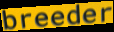
breeder